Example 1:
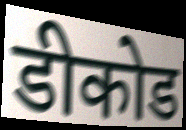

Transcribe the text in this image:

डीकोड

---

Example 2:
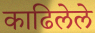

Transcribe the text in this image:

काढिलेले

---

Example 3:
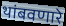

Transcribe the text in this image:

थांबवणारे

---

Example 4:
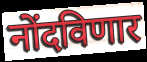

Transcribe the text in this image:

नोंदविणार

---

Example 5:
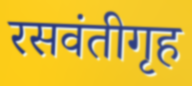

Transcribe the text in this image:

रसवंतीगृह